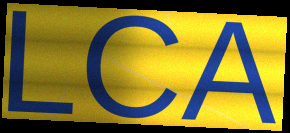
LCA